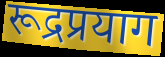
रूद्रप्रयाग